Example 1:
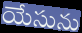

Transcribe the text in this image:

యేసును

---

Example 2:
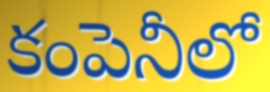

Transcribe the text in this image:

కంపెనీలో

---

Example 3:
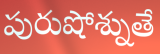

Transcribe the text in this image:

పురుషోశ్నుతే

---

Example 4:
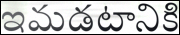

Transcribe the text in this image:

ఇమడటానికి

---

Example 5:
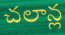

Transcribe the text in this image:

చలాన్ల